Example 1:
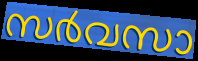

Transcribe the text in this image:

സർവസാ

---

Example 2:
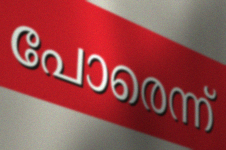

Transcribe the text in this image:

പോരെന്ന്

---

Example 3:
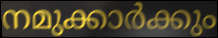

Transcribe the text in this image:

നമുക്കാർക്കും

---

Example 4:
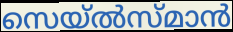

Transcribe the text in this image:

സെയ്ൽസ്മാൻ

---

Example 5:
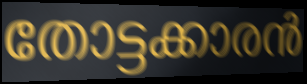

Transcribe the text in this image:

തോട്ടക്കാരൻ